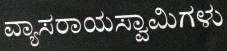
ವ್ಯಾಸರಾಯಸ್ವಾಮಿಗಳು